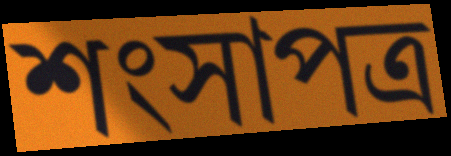
শংসাপত্র